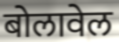
बोलावेल